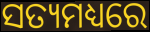
ସତ୍ୟମଧ୍ୟରେ